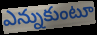
ఎన్నుకుంటూ